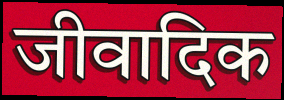
जीवादिक